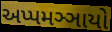
અપ્પમઞ્ઞાયો